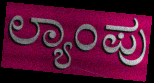
ಲ್ಯಾಂಪು